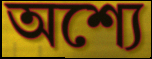
অশ্যে